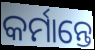
କର୍ମାନ୍ତେ